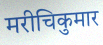
मरीचिकुमार